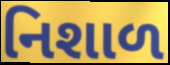
નિશાળ